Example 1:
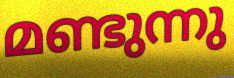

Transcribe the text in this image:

മണ്ടുന്നു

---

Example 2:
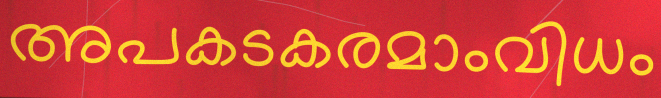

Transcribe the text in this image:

അപകടകരമാംവിധം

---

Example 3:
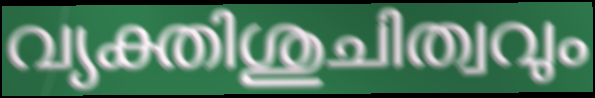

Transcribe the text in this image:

വ്യക്തിശുചിത്വവും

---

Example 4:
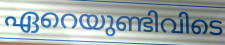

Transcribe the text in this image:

ഏറെയുണ്ടിവിടെ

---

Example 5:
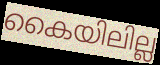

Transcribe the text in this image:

കൈയിലില്ല